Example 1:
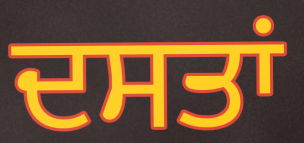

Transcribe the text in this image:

ਦਸਤਾਂ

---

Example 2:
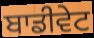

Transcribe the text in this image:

ਬਾਡੀਵੇਟ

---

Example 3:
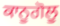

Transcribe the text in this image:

ਕਾਨੂਗੋਲੂ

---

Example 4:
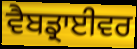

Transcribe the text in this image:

ਵੈਬਡ੍ਰਾਈਵਰ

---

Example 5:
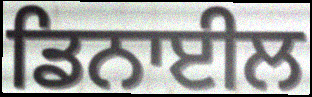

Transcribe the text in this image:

ਡਿਨਾਈਲ